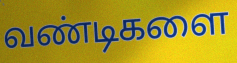
வண்டிகளை